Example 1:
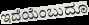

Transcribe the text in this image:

ಇದೆಯೆಂಬುದೂ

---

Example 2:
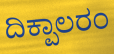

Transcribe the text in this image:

ದಿಕ್ಪಾಲರಂ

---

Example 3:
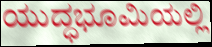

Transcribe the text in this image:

ಯುದ್ಧಭೂಮಿಯಲ್ಲಿ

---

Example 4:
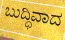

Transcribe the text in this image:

ಬುದ್ಧಿವಾದ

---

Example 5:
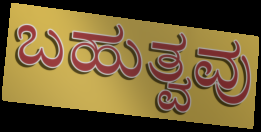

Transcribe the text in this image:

ಬಹುತ್ವವು